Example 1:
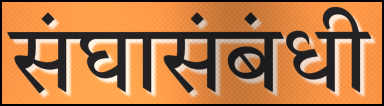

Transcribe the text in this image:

संघासंबंधी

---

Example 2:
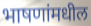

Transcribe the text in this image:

भाषणांमधील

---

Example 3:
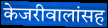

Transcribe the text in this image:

केजरीवालांसह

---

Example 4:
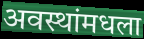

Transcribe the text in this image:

अवस्थांमधला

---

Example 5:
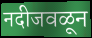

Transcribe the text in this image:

नदीजवळून